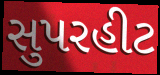
સુપરહીટ